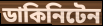
ডাকিনিটেন